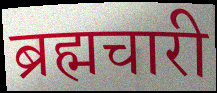
ब्रह्मचारी